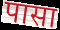
पासा